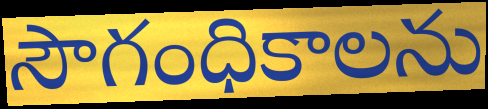
సౌగంధికాలను